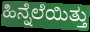
ಹಿನ್ನೆಲೆಯಿತ್ತು